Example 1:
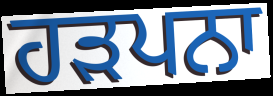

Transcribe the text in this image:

ਹੜਪਨਾ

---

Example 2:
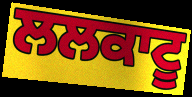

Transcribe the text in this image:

ਲਲਕਾਟੂ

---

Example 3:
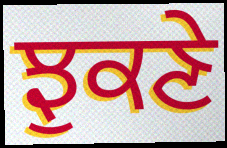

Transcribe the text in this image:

ਝੁਕਣੇ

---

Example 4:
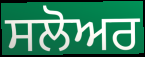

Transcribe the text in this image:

ਸਲੋਅਰ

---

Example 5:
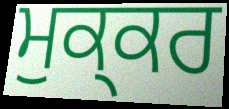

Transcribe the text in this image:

ਮੁਕ੍ਕਰ